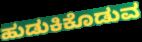
ಹುಡುಕಿಕೊಡುವ